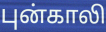
புன்காலி